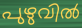
പുഴുവിൽ